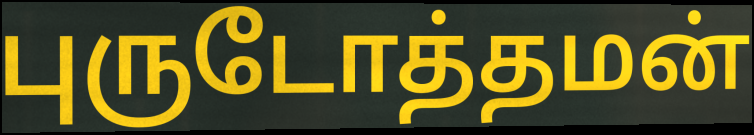
புருடோத்தமன்